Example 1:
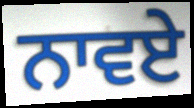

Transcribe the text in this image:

ਨਾਵਏ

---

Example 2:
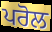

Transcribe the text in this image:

ਪਰੋਲ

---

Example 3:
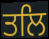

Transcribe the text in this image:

ਤਲਿ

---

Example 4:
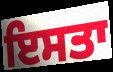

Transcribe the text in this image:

ਇਸਤਾ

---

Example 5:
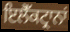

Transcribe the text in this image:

ਇਲੈੱਕਟ੍ਰਾਨਾਂ